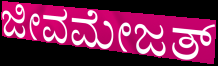
ಜೀವಮೇಜತ್